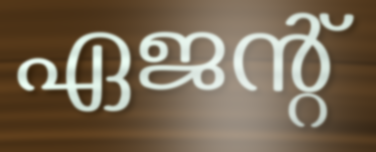
ഏജന്റ്